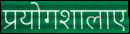
प्रयोगशालाए